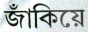
জাঁকিয়ে